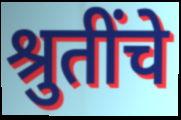
श्रुतींचे